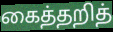
கைத்தறித்